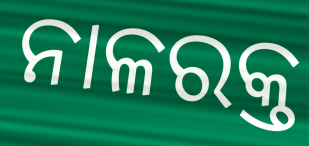
ନାଳରକ୍ତ